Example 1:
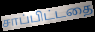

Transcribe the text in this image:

சாப்பிட்டதை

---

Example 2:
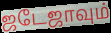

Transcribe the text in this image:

ஜடேஜாவும்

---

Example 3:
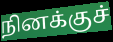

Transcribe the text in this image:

நினக்குச்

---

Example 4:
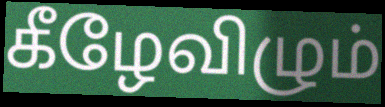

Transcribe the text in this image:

கீழேவிழும்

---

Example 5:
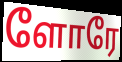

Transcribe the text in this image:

ளோரே